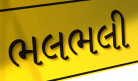
ભલભલી